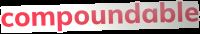
compoundable